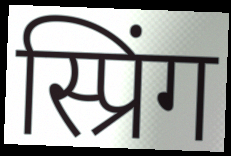
स्प्रिंग